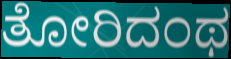
ತೋರಿದಂಥ